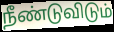
நீண்டுவிடும்